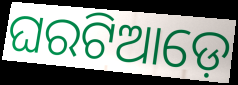
ଘରଟିଆଡ଼େ